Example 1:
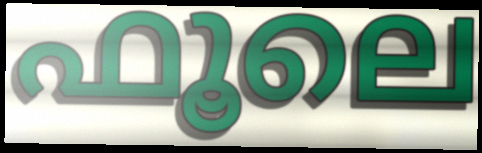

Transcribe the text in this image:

ഫൂലെ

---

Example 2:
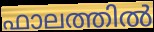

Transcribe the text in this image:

ഫാലത്തിൽ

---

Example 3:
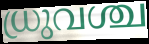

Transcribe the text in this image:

ധ്രുവശ്ച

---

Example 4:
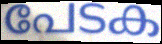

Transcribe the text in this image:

പേടക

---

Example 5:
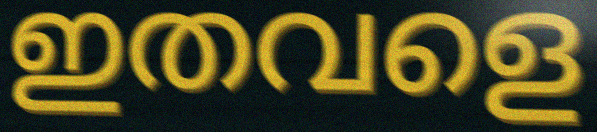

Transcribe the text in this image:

ഇതവളെ